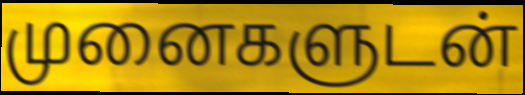
முனைகளுடன்